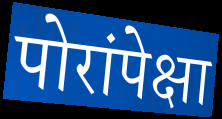
पोरांपेक्षा